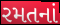
રમતનાં